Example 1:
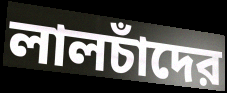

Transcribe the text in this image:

লালচাঁদের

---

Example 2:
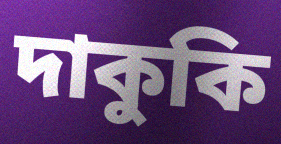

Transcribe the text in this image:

দাকুকি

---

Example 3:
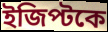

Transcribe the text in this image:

ইজিপ্টকে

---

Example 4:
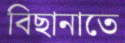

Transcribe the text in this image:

বিছানাতে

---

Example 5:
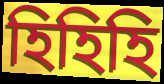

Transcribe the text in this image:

হিহিহি